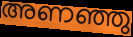
അണഞ്ഞു